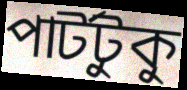
পার্টটুকু